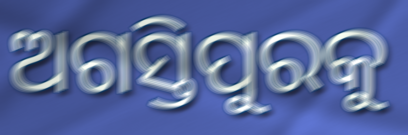
ଅଗସ୍ତିପୁରକୁ